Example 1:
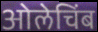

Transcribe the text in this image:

ओलेचिंब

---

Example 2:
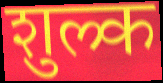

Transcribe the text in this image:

शुल्क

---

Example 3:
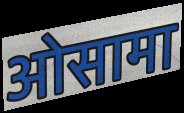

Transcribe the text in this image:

ओसामा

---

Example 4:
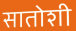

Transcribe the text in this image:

सातोशी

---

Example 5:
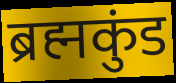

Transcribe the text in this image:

ब्रह्मकुंड